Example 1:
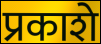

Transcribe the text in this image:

प्रकाशे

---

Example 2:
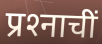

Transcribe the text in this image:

प्रश्नाचीं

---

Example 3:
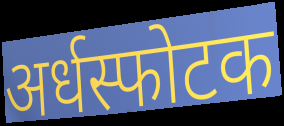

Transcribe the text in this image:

अर्धस्फोटक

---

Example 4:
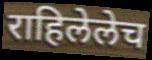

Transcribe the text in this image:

राहिलेलेच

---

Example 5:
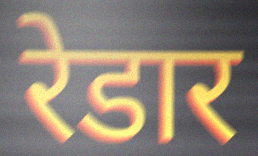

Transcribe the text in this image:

रेडार